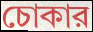
চোকার